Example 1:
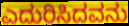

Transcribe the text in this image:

ಎದುರಿಸಿದವನು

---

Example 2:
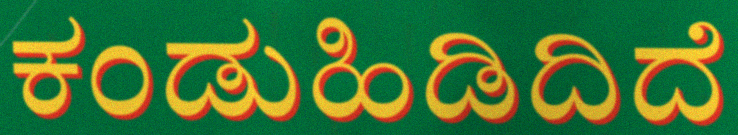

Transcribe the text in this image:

ಕಂಡುಹಿಡಿದಿದೆ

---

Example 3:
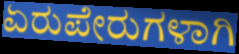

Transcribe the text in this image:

ಏರುಪೇರುಗಳಾಗಿ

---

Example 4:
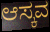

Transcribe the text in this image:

ಆಸ್ಕವ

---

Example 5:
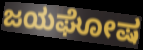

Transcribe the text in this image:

ಜಯಘೋಷ